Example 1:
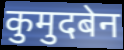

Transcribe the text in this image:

कुमुदबेन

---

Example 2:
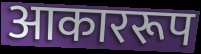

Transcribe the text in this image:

आकाररूप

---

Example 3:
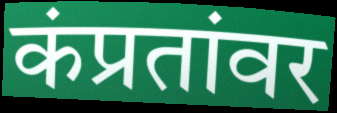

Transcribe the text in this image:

कंप्रतांवर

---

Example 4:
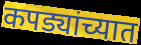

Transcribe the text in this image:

कपड्यांच्यात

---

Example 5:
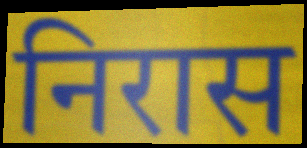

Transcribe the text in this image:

निरास